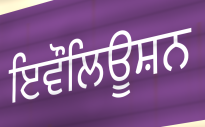
ਇਵੌਲਿਊਸ਼ਨ